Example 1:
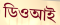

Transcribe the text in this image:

ডিওআই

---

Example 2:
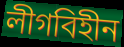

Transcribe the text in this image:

লীগবিহীন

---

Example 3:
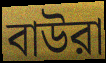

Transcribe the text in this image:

বাউরা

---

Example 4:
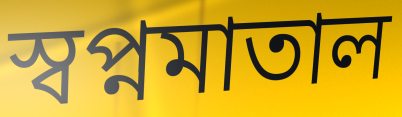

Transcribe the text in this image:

স্বপ্নমাতাল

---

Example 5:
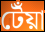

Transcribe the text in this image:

টেঁয়া